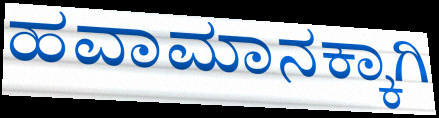
ಹವಾಮಾನಕ್ಕಾಗಿ